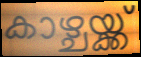
കാഴ്ചയ്ക്ക്